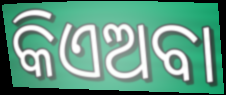
କିଏଅବା